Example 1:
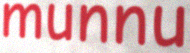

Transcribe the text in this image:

munnu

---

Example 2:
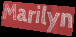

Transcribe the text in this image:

Marilyn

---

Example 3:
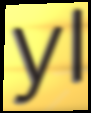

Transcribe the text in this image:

yl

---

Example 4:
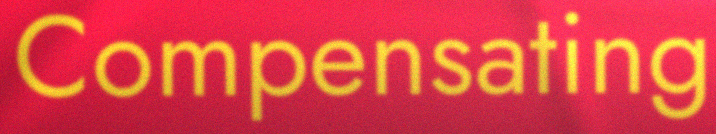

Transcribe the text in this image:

Compensating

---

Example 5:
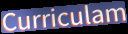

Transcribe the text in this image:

Curriculam